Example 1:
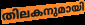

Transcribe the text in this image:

തിലകനുമായി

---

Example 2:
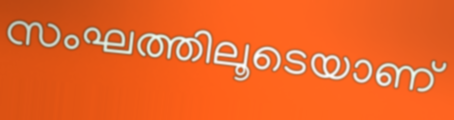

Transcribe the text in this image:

സംഘത്തിലൂടെയാണ്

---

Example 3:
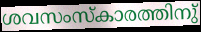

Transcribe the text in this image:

ശവസംസ്കാരത്തിനു്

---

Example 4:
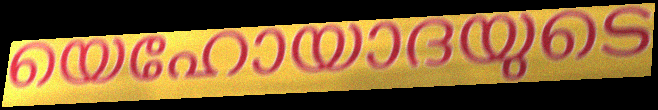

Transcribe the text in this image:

യെഹോയാദയുടെ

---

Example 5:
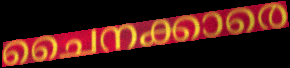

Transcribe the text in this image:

ചൈനക്കാരെ